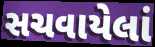
સચવાયેલાં